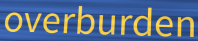
overburden